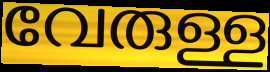
വേരുള്ള